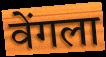
वेंगला